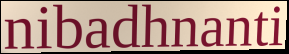
nibadhnanti